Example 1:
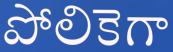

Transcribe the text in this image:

పోలికెగా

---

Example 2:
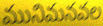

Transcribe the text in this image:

మునిమనవల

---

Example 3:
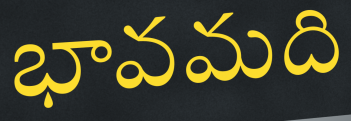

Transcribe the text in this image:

భావమది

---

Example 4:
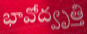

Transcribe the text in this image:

భావోద్వృత్తి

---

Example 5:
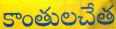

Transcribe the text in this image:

కాంతులచేత